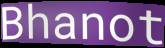
Bhanot